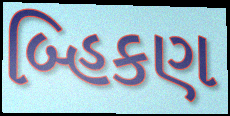
બ્હિકણ